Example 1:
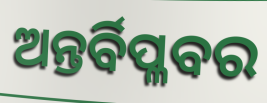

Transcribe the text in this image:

ଅନ୍ତର୍ବିପ୍ଳବର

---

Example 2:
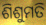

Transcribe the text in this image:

ଶିଶୁମତି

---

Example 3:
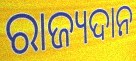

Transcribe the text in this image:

ରାଜ୍ୟଦାନ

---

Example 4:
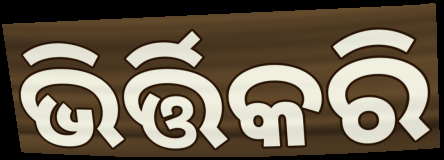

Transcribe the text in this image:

ଭିର୍ତ୍ତିକରି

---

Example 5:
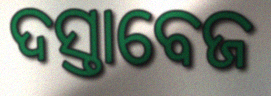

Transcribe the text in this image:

ଦସ୍ତାବେଜ